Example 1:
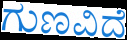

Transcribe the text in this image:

ಗುಣವಿದೆ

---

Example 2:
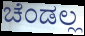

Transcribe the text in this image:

ಚೆಂಡಲ್ಲ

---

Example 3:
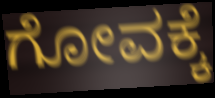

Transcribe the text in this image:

ಗೋವಕ್ಕೆ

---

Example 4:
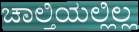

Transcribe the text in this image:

ಚಾಲ್ತಿಯಲ್ಲಿಲ್ಲ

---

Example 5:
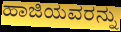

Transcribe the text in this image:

ಹಾಜಿಯವರನ್ನು